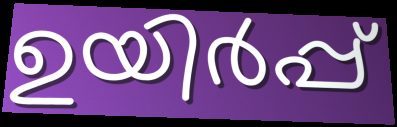
ഉയിർപ്പ്